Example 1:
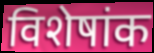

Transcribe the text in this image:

विशेषांक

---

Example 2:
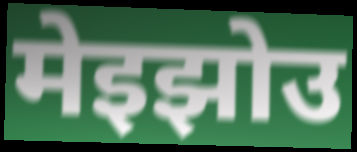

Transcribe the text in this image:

मेइझोउ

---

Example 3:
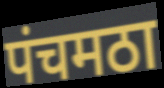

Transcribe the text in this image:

पंचमठा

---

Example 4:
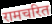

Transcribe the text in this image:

रामचरित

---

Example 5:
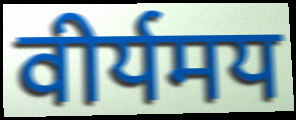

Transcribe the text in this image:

वीर्यमय